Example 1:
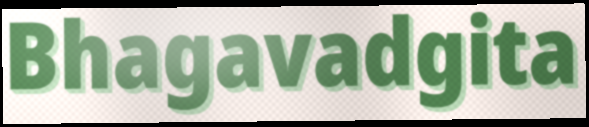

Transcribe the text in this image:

Bhagavadgita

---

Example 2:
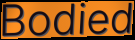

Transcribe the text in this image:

Bodied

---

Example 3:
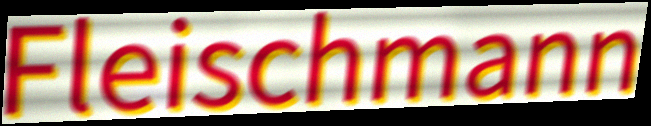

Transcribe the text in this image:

Fleischmann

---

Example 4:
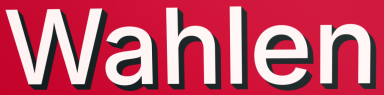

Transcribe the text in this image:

Wahlen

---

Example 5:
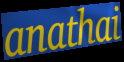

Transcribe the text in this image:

anathai